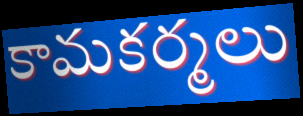
కామకర్మలు